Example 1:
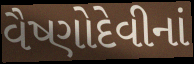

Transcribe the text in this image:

વૈષ્ણોદેવીનાં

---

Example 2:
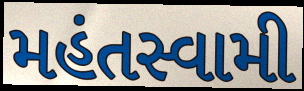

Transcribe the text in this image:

મહંતસ્વામી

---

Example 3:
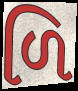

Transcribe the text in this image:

ળિ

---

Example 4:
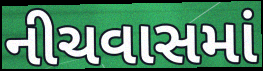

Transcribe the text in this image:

નીચવાસમાં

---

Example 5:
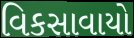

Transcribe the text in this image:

વિકસાવાયો